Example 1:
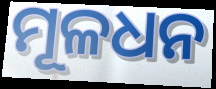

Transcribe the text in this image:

ମୂଳଧନ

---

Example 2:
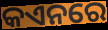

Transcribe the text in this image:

କଏନରେ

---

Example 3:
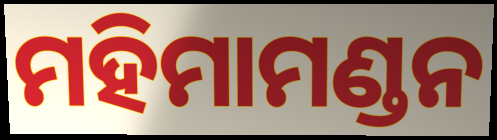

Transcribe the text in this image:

ମହିମାମଣ୍ଡନ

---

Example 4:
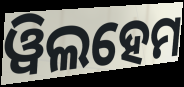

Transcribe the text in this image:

ୱିଲହେମ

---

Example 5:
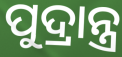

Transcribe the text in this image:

ପୁଦ୍ରାନ୍ତ୍ର